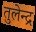
तुलेन्द्र